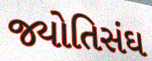
જ્યોતિસંઘ